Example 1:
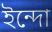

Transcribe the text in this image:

ইন্দো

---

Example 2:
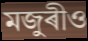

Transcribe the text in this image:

মজুৰীও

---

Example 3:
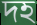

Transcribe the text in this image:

দহ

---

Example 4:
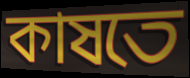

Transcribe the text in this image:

কাষতে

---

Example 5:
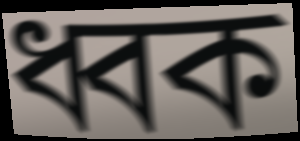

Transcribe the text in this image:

ধ্বক